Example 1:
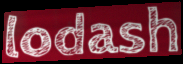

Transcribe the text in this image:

lodash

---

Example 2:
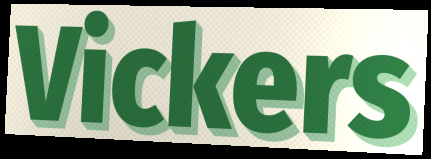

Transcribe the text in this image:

Vickers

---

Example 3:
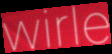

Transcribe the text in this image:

wirle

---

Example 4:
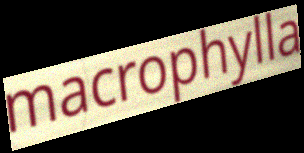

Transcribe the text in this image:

macrophylla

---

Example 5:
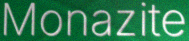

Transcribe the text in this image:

Monazite